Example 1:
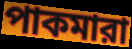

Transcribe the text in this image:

পাকমারা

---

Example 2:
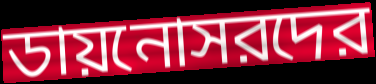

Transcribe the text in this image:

ডায়নোসরদের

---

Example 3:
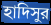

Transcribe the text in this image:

হাদিসুর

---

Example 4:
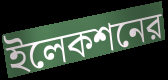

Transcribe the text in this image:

ইলেকশনের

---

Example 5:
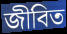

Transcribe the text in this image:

জীবিত